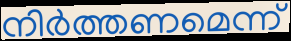
നിർത്തണമെന്ന്